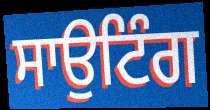
ਸਾਉਟਿੰਗ